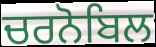
ਚਰਨੋਬਿਲ